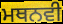
ਮਥਨਵੀ